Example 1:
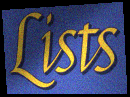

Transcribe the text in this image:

Lists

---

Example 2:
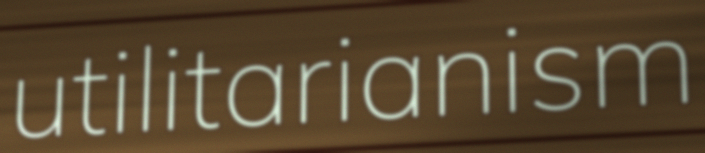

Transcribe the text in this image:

utilitarianism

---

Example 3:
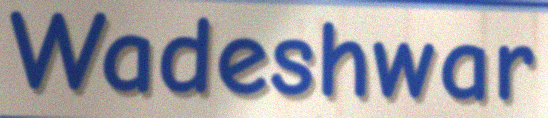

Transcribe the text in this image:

Wadeshwar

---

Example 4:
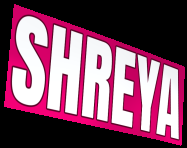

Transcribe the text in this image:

SHREYA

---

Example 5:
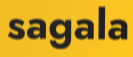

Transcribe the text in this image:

sagala